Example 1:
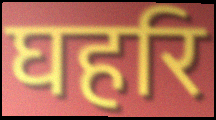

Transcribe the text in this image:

घहरि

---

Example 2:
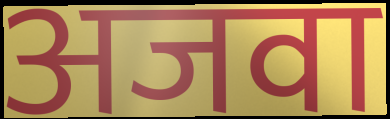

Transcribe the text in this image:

अजवा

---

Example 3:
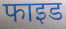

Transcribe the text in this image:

फाइड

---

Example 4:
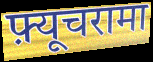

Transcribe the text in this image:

फ़्यूचरामा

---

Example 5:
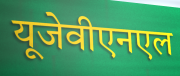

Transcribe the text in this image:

यूजेवीएनएल